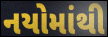
નયોમાંથી